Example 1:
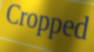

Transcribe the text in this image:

Cropped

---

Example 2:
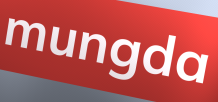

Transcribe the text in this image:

mungda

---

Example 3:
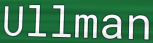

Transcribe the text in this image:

Ullman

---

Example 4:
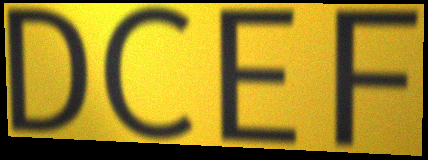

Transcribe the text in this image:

DCEF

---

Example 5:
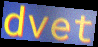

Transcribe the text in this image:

dvet